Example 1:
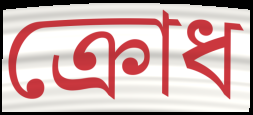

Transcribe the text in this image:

ক্রোধ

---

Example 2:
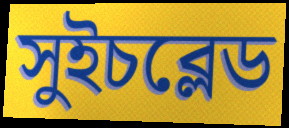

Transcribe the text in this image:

সুইচব্লেড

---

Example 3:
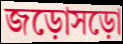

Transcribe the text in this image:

জড়োসড়ো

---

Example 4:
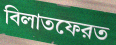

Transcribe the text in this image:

বিলাতফেরত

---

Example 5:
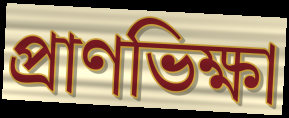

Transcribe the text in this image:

প্রাণভিক্ষা